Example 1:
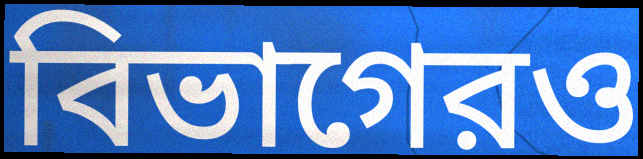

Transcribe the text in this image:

বিভাগেরও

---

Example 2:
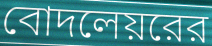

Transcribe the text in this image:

বোদলেয়রের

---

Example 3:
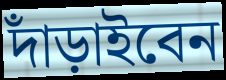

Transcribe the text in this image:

দাঁড়াইবেন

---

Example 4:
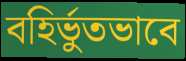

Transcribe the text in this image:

বহির্ভুতভাবে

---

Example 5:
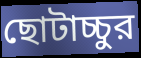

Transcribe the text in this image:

ছোটাচ্চুর